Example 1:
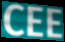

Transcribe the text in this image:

CEE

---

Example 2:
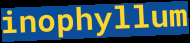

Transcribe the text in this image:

inophyllum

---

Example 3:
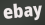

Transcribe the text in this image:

ebay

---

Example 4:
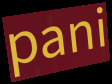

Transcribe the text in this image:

pani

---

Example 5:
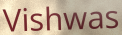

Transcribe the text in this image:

Vishwas